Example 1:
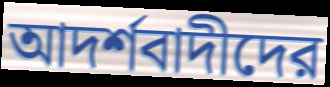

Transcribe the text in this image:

আদর্শবাদীদের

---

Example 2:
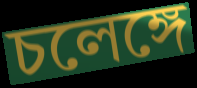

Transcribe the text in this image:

চলেঙ্গে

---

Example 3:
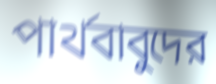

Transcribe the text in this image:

পার্থবাবুদের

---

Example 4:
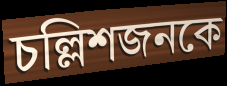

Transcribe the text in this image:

চল্লিশজনকে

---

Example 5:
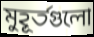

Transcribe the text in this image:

মুহূর্তগুলো